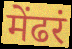
मेंढरं